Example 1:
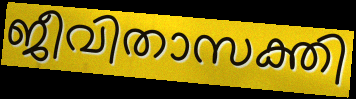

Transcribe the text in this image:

ജീവിതാസക്തി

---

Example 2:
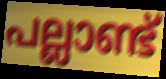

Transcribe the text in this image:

പല്ലാണ്ട്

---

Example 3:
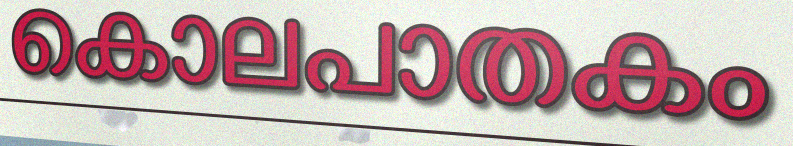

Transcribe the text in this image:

കൊലപാതകം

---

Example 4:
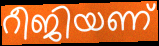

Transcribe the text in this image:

റീജിയണ്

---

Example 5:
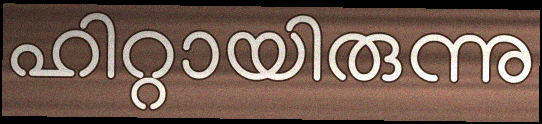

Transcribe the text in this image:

ഹിറ്റായിരുന്നു